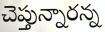
చెప్తున్నారన్న